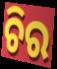
ଚିର